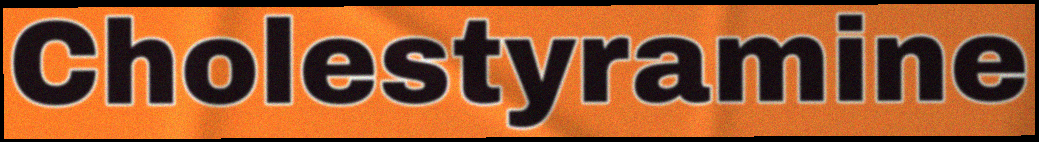
Cholestyramine